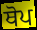
ਥੋਪ